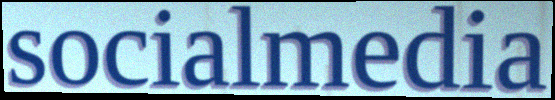
socialmedia